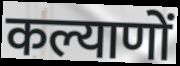
कल्याणों